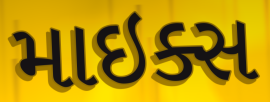
માઇક્સ